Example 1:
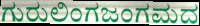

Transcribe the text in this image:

ಗುರುಲಿಂಗಜಂಗಮದ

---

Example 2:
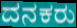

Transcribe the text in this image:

ದನಕರು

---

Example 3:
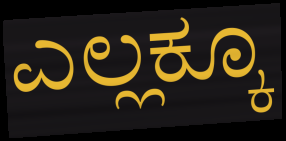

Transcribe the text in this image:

ಎಲ್ಲಕ್ಕೂ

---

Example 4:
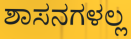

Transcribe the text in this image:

ಶಾಸನಗಳಲ್ಲ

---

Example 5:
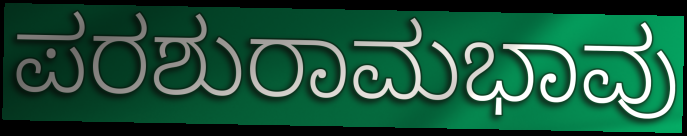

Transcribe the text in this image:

ಪರಶುರಾಮಭಾವು